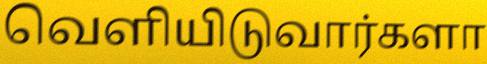
வெளியிடுவார்களா